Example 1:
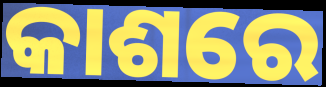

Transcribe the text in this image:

କାଶରେ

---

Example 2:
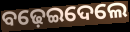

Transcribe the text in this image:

ବଢ଼େଇଦେଲେ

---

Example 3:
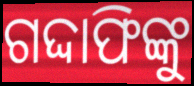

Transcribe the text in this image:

ଗଦ୍ଦାଫିଙ୍କୁ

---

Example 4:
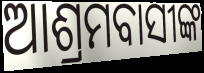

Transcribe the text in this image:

ଆଶ୍ରମବାସୀଙ୍କ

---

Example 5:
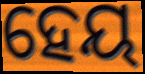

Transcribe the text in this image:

ହେୟ